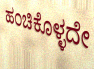
ಹಂಚಿಕೊಳ್ಳದೇ